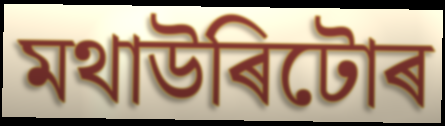
মথাউৰিটোৰ